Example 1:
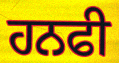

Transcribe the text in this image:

ਹਨਫੀ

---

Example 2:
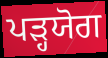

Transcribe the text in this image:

ਪੜ੍ਹਯੋਗ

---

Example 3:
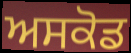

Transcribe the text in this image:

ਅਸਕੋਡ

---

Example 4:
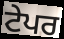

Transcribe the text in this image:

ਟੇਪਰ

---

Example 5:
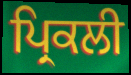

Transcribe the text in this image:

ਪ੍ਰਿਕਲੀ